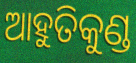
ଆହୁତିକୁଣ୍ଡ